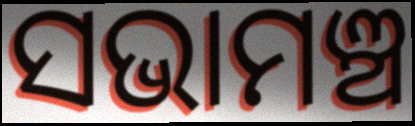
ସଭାମଞ୍ଚ